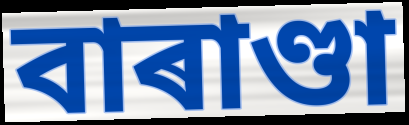
বাৰাণ্ডা